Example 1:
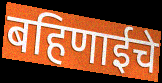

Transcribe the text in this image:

बहिणाईचे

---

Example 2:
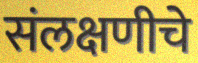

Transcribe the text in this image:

संलक्षणीचे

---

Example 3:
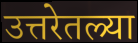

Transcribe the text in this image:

उत्तरेतल्या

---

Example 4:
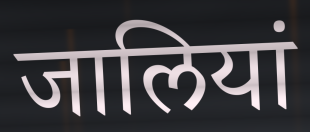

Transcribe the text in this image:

जालियां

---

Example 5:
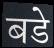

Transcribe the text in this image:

बडे